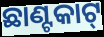
ଛାଣ୍ଟକାଟ୍